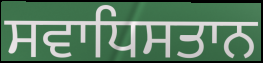
ਸਵਾਧਿਸਤਾਨ